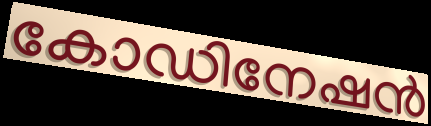
കോഡിനേഷൻ